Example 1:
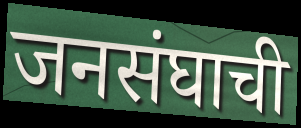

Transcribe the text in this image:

जनसंघाची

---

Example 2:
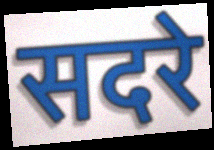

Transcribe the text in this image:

सदरे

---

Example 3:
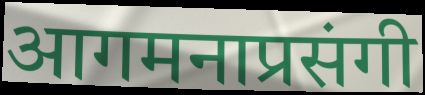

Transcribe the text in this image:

आगमनाप्रसंगी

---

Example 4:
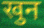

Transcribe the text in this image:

खुन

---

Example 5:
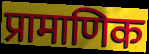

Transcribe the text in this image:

प्रामाणिक